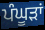
ਪੰਘੂੜਾਂ